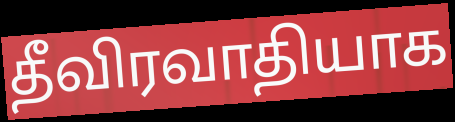
தீவிரவாதியாக